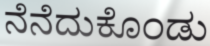
ನೆನೆದುಕೊಂಡು